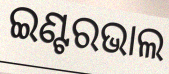
ଇଣ୍ଟରଭାଲ